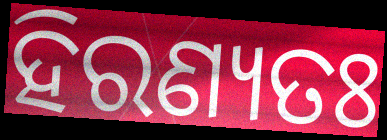
ହିରଣ୍ୟତଃ